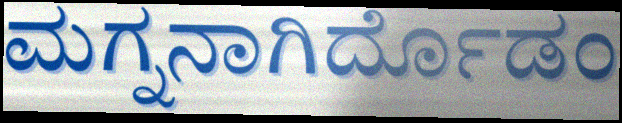
ಮಗ್ನನಾಗಿರ್ದೊಡಂ